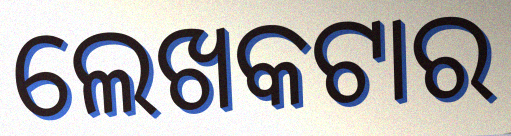
ଲେଖକଟାର